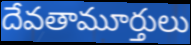
దేవతామూర్తులు